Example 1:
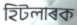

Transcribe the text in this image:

হিটলাৰক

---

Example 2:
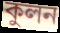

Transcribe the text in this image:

কুলন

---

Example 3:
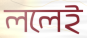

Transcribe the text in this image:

ললেই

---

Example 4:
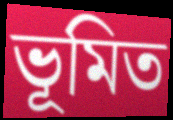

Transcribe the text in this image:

ভূমিত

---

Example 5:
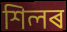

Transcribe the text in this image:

শিলৰ